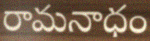
రామనాధం